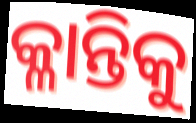
କ୍ଳାନ୍ତିକୁ